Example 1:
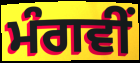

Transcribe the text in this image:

ਮੰਗਵੀਂ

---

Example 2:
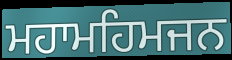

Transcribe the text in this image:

ਮਹਾਮਹਿਮਜਨ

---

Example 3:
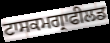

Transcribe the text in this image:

ਟਾਸਕਮਗ੍ਰਾਫੀਲਡ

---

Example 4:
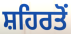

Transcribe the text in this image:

ਸ਼ਹਿਰਤੋਂ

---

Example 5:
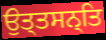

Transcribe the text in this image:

ਉਤ੍ਤਸਨ੍ਤਿ